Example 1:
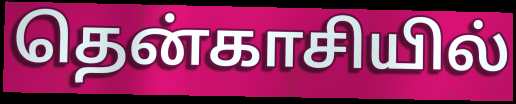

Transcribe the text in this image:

தென்காசியில்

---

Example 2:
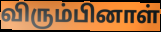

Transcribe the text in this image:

விரும்பினாள்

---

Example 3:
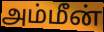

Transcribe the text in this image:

அம்மீன்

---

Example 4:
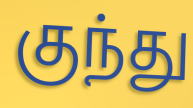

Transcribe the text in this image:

குந்து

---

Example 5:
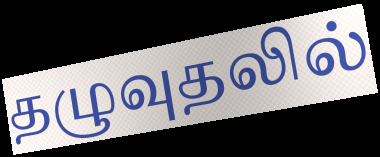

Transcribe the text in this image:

தழுவுதலில்